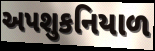
અપશુકનિયાળ